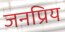
जनप्रिय